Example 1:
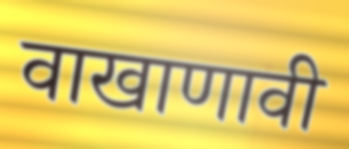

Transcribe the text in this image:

वाखाणावी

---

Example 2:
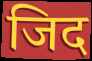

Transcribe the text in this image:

जिद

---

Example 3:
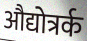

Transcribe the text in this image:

औद्योत्रर्क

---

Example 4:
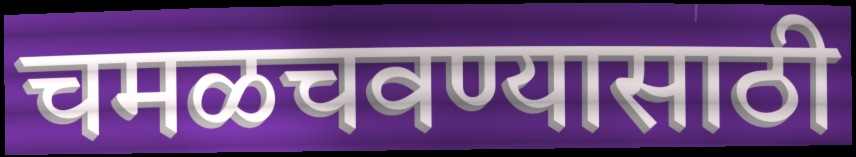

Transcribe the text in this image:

चमळचवण्यासाठी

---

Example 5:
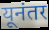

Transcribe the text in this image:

यूनंतर